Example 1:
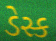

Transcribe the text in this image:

ડેસ્ક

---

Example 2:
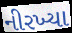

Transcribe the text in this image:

નીરખ્યા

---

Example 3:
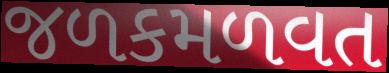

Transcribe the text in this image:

જળકમળવત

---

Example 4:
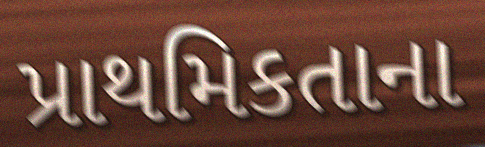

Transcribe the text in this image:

પ્રાથમિકતાના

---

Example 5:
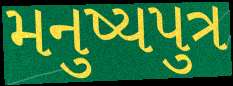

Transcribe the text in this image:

મનુષ્યપુત્ર